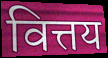
वित्तय